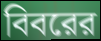
বিবরের